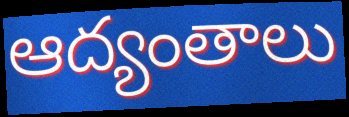
ఆద్యంతాలు